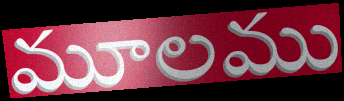
మూలము